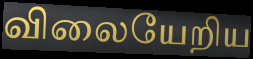
விலையேறிய